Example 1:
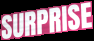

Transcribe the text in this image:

SURPRISE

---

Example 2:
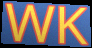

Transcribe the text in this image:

WK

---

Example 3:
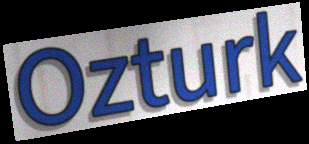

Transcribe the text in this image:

Ozturk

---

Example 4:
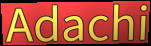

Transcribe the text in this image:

Adachi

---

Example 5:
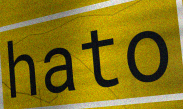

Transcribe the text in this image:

hato